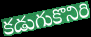
కడుగుకొనిరి